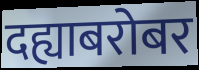
दह्याबरोबर